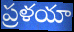
ప్రళయా